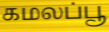
கமலப்பூ